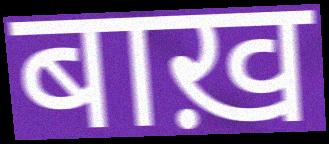
बाख़